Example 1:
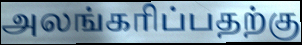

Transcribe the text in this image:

அலங்கரிப்பதற்கு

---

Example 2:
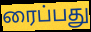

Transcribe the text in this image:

ரைப்பது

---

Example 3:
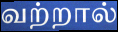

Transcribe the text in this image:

வற்றால்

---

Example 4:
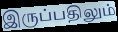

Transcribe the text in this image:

இருப்பதிலும்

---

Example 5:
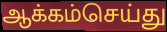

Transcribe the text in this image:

ஆக்கம்செய்து